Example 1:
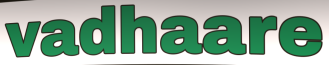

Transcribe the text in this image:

vadhaare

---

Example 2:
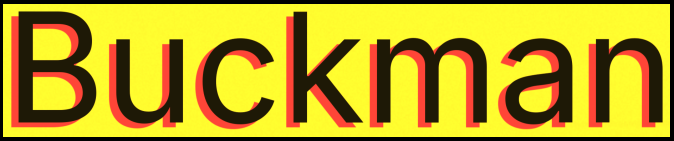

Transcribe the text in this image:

Buckman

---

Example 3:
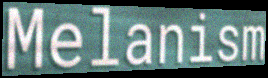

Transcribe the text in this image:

Melanism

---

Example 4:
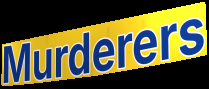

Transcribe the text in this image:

Murderers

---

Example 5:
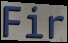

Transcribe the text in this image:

Fir